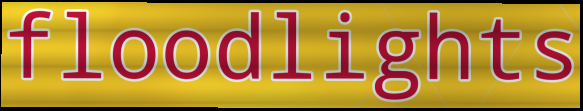
floodlights